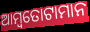
ଆମ୍ବତୋଟାମାନ